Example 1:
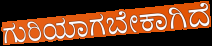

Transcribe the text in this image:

ಗುರಿಯಾಗಬೇಕಾಗಿದೆ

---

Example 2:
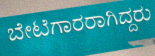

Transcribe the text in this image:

ಬೇಟೆಗಾರರಾಗಿದ್ದರು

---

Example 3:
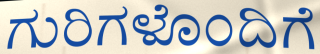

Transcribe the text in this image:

ಗುರಿಗಳೊಂದಿಗೆ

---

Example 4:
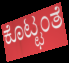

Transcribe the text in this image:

ಕೊಟ್ಟಂತೆ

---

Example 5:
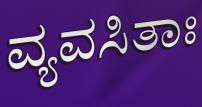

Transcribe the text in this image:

ವ್ಯವಸಿತಾಃ